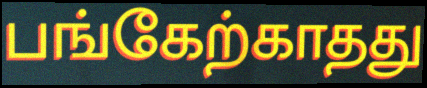
பங்கேற்காதது